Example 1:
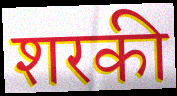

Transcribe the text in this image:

शरकी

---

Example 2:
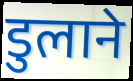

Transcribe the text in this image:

डुलाने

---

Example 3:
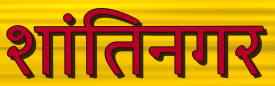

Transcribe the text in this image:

शांतिनगर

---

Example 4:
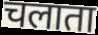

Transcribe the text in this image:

चलाता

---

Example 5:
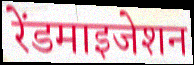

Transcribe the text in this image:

रेंडमाइजेशन